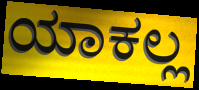
ಯಾಕಲ್ಲ